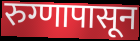
रुग्णापासून